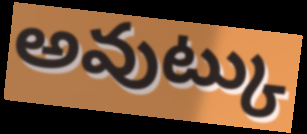
అవుట్కు